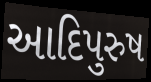
આદિપુરુષ